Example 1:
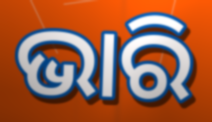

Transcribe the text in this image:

ଭାରି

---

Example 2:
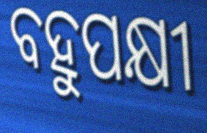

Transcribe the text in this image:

ବହୁପକ୍ଷୀ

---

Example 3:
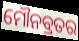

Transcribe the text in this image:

ମୌନବ୍ରତର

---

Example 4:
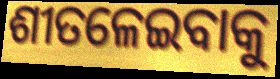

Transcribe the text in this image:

ଶୀତଳେଇବାକୁ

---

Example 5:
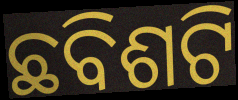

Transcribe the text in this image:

ଛବିଶଟି